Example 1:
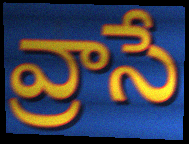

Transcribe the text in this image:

వ్రాసే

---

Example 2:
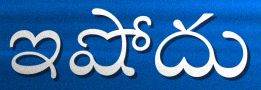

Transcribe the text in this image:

ఇషోదు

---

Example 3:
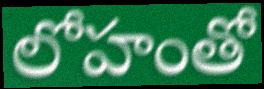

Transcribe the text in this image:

లోహంతో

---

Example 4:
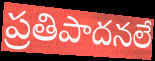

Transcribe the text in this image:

ప్రతిపాదనలే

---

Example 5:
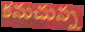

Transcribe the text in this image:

కనుచున్న